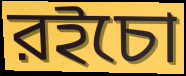
রইচো